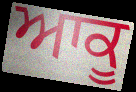
ਆਕੂ